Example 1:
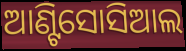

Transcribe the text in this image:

ଆଣ୍ଟିସୋସିଆଲ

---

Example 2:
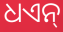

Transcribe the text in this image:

ଧଏନ୍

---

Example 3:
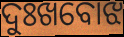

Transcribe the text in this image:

ଦୁଃଖବୋଝ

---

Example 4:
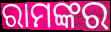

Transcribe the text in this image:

ରାମଙ୍କର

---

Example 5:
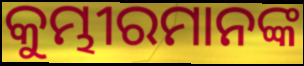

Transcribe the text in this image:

କୁମ୍ଭୀରମାନଙ୍କ